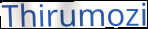
Thirumozi